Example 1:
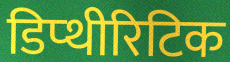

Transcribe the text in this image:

डिप्थीरिटिक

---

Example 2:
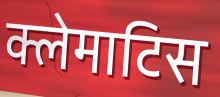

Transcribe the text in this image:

क्लेमाटिस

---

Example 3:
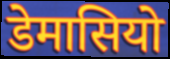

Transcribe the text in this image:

डेमासियो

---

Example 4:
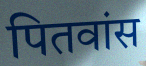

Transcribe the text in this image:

पितवांस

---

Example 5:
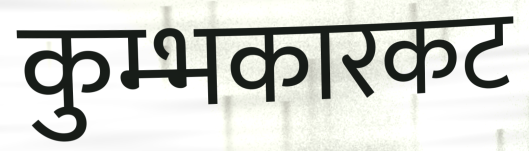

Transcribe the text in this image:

कुम्भकारकट